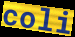
coli